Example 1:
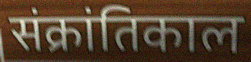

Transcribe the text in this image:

संक्रांतिकाल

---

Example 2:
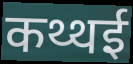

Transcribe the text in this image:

कथ्थई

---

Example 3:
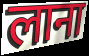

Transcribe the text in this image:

लाना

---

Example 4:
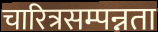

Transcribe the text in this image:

चारित्रसम्पन्नता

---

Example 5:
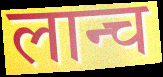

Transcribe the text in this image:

लान्‍च